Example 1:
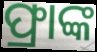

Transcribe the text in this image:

ଫ୍ରାଙ୍କ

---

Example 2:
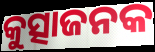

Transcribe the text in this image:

କୁତ୍ସାଜନକ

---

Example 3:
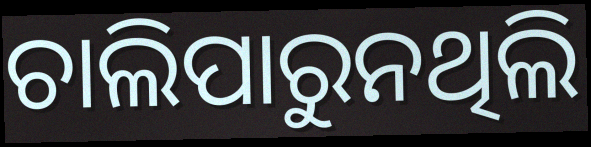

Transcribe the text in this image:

ଚାଲିପାରୁନଥିଲି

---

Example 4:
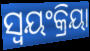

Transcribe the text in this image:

ସ୍ବୟଂକ୍ରିୟା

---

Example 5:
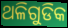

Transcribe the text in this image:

ଥଳିଗୁଡିକ